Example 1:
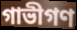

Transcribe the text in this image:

গাভীগণ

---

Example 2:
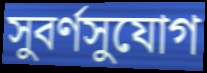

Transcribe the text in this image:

সুবর্ণসুযোগ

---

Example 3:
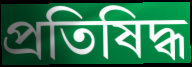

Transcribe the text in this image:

প্রতিষিদ্ধ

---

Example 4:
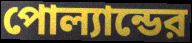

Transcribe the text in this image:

পোল্যান্ডের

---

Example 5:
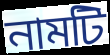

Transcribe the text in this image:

নামটি